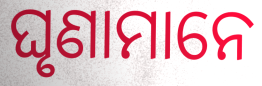
ଘୃଣାମାନେ